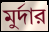
মুর্দার